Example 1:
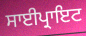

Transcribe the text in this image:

ਸਾਈਪ੍ਰਾਇਟ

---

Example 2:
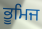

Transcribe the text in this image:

ਭੂਮਿਜ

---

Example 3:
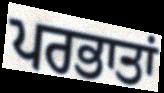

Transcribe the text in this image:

ਪਰਭਾਤਾਂ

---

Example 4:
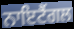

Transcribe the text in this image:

ਨਾਇਟੈਂਗਲ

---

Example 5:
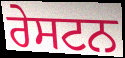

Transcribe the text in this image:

ਰੇਸਟਨ